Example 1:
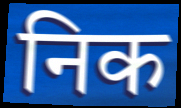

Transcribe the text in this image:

निक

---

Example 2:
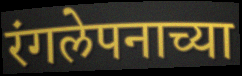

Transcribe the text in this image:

रंगलेपनाच्या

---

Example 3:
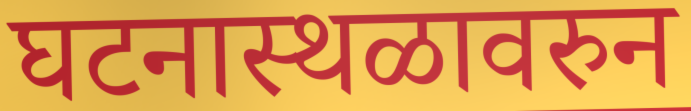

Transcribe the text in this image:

घटनास्थळावरुन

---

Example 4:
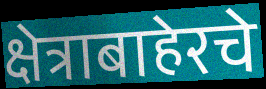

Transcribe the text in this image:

क्षेत्राबाहेरचे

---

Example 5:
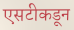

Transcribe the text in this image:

एसटीकडून